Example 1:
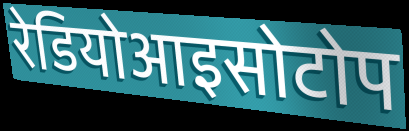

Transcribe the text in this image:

रेडियोआइसोटोप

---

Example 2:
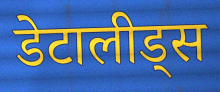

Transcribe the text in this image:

डेटालीड्स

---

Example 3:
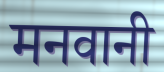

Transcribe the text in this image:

मनवानी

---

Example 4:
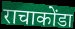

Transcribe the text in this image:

राचाकोंडा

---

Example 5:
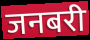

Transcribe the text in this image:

जनबरी